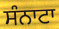
ਸੰਨਾਟਾ